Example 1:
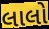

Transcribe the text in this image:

લાલો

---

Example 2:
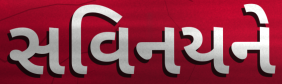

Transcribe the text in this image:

સવિનયને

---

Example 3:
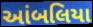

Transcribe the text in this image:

આંબલિયા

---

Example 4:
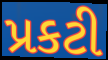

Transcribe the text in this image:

પ્રકટી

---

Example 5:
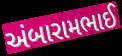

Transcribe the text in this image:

અંબારામભાઈ